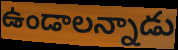
ఉండాలన్నాడు